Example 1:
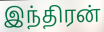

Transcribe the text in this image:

இந்திரன்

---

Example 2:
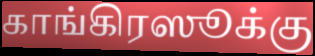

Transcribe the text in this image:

காங்கிரஸூக்கு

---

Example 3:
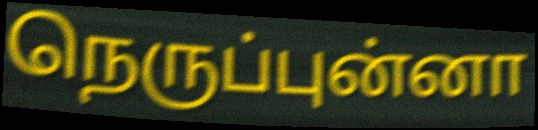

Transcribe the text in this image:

நெருப்புன்னா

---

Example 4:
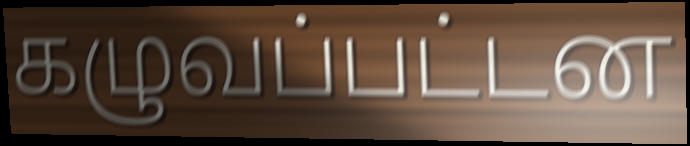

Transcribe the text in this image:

கழுவப்பட்டன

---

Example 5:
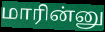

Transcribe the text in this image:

மாரின்னு